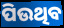
ପିଉଥିବ